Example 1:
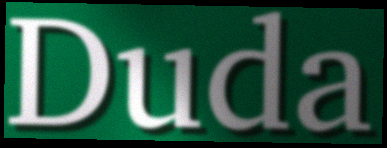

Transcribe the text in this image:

Duda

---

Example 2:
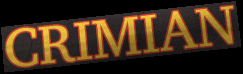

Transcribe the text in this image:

CRIMIAN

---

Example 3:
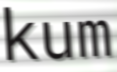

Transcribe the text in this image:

kum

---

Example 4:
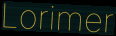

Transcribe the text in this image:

Lorimer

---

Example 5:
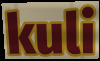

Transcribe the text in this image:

kuli